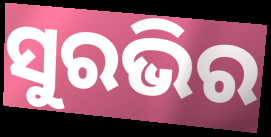
ସୁରଭିର